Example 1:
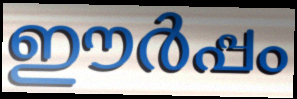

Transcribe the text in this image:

ഈർപ്പം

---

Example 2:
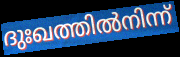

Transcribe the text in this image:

ദുഃഖത്തിൽനിന്ന്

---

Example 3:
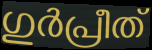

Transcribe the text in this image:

ഗുർപ്രീത്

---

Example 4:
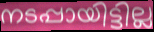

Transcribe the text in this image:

നടപ്പായിട്ടില്ല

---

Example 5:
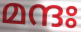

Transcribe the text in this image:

മന്ദഃ